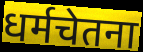
धर्मचेतना